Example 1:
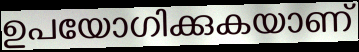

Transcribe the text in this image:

ഉപയോഗിക്കുകയാണ്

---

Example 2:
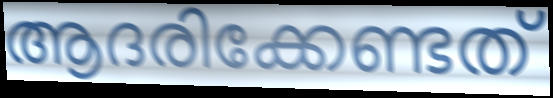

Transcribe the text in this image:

ആദരിക്കേണ്ടത്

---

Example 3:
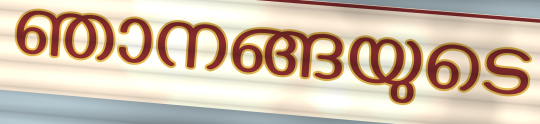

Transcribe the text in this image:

ഞാനങ്ങയുടെ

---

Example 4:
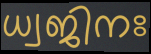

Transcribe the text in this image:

ധ്വജിനഃ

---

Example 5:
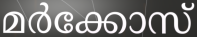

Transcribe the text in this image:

മർക്കോസ്